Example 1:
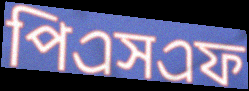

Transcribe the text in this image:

পিএসএফ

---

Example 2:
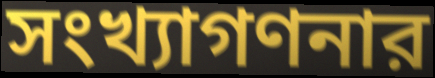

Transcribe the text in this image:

সংখ্যাগণনার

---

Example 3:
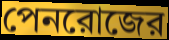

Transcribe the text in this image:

পেনরোজের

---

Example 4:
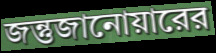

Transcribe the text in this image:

জন্তুজানোয়ারের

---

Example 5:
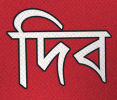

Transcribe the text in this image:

দিব